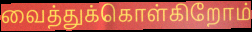
வைத்துக்கொள்கிறோம்